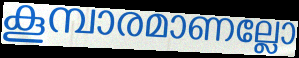
കൂമ്പാരമാണല്ലോ